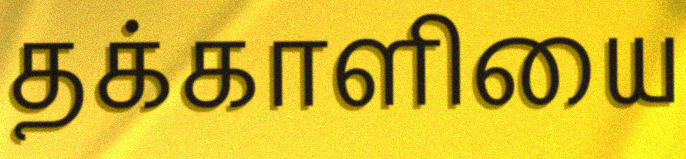
தக்காளியை